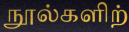
நூல்களிற்